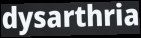
dysarthria